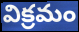
విక్రమం